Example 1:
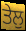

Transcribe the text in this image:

ਤੇਲੁ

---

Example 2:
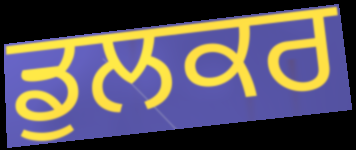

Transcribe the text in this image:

ਡੁਲਕਰ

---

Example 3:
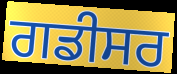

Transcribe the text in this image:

ਗਡੀਸਰ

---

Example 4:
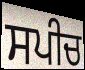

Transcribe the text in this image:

ਸਪੀਚ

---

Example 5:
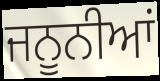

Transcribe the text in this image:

ਜਨੂਨੀਆਂ